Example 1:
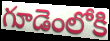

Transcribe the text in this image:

గూడెంలోకి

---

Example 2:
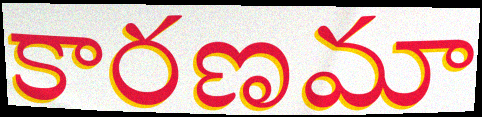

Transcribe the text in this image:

కారణమా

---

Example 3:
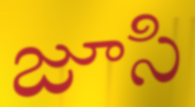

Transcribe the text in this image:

జూసి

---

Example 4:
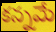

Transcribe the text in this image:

కన్నమే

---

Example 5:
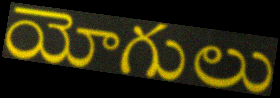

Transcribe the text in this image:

యోగులు